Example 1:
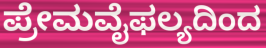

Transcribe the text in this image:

ಪ್ರೇಮವೈಫಲ್ಯದಿಂದ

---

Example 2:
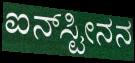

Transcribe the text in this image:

ಐನ್‌ಸ್ಟೀನನ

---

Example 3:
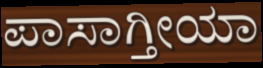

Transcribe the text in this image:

ಪಾಸಾಗ್ತೀಯಾ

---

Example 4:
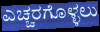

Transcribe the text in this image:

ಎಚ್ಚರಗೊಳ್ಳಲು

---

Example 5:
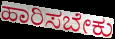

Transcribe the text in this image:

ಹಾರಿಸಬೇಕು